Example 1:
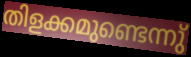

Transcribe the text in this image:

തിളക്കമുണ്ടെന്നു്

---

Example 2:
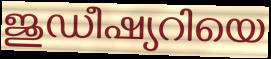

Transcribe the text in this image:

ജുഡീഷ്യറിയെ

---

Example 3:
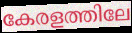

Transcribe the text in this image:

കേരളത്തിലേ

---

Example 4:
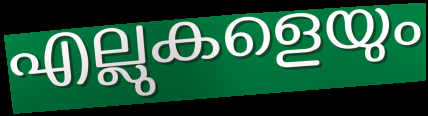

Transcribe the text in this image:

എല്ലുകളെയും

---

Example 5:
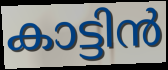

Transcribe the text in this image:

കാട്ടിൻ